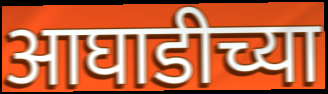
आघाडीच्या